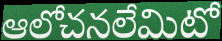
ఆలోచనలేమిటో